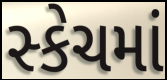
સ્કેચમાં